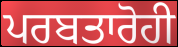
ਪਰਬਤਾਰੋਹੀ